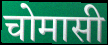
चोमासी